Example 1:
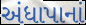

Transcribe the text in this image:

અંધાપાનાં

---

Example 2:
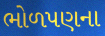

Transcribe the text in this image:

ભોળપણના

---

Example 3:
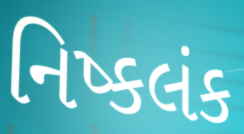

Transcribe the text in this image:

નિષ્કલંક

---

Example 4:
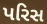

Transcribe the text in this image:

પરિસ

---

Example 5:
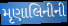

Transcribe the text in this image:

મૃણાલિનીની